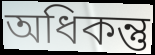
অধিকন্তু